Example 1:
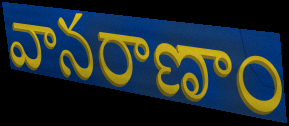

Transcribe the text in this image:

వానరాణాం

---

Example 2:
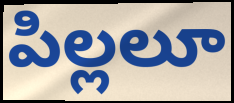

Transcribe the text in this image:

పిల్లలూ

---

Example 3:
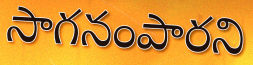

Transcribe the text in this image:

సాగనంపారని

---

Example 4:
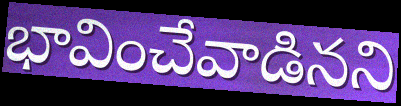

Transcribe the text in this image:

భావించేవాడినని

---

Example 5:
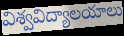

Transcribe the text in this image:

విశ్వవిద్యాలయాలు